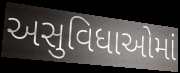
અસુવિધાઓમાં